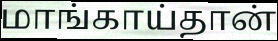
மாங்காய்தான்